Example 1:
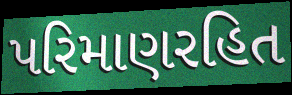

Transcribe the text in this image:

પરિમાણરહિત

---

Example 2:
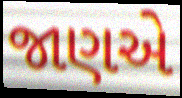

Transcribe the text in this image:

જાણએ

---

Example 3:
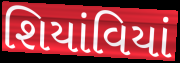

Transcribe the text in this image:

શિયાંવિયાં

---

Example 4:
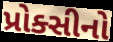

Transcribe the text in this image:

પ્રોક્સીનો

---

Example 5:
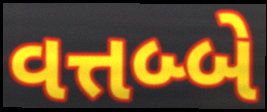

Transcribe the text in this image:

વત્તબ્બે